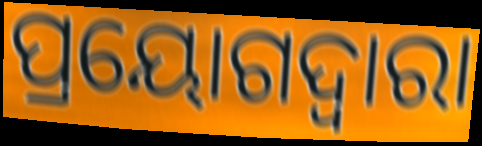
ପ୍ରୟୋଗଦ୍ୱାରା